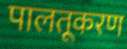
पालतूकरण